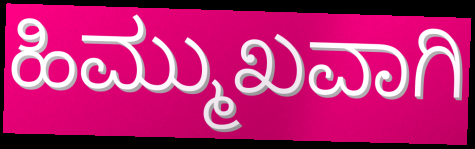
ಹಿಮ್ಮುಖವಾಗಿ